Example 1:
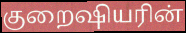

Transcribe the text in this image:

குறைஷியரின்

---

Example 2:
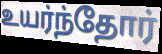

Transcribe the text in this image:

உயர்ந்தோர்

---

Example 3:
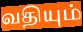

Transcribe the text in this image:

வதியும்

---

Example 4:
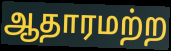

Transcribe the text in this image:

ஆதாரமற்ற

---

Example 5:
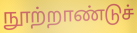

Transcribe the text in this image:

நூற்றாண்டுச்